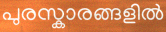
പുരസ്കാരങ്ങളിൽ